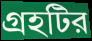
গ্রহটির